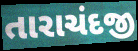
તારાચંદજી